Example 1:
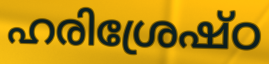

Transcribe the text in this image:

ഹരിശ്രേഷ്ഠ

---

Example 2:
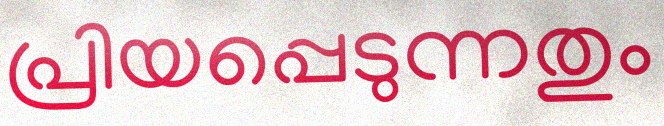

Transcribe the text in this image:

പ്രിയപ്പെടുന്നതും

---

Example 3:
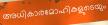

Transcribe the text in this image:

അധികാരമോഹികളുടെയും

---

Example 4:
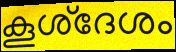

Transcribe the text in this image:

കൂശ്ദേശം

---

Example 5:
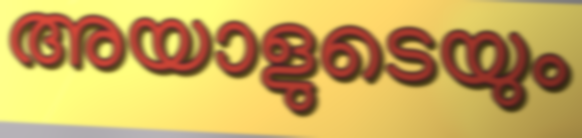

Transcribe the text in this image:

അയാളുടെയും